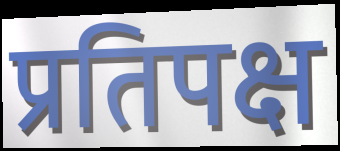
प्रतिपक्ष